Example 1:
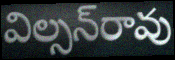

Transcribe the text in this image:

విల్సన్‌రావు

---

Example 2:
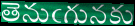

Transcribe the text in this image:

తెనుఁగునకు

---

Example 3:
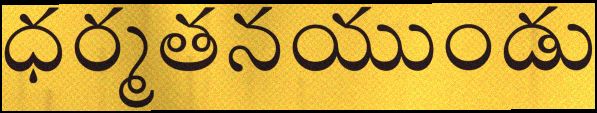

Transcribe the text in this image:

ధర్మతనయుండు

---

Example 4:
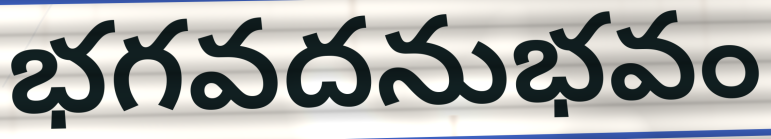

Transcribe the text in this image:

భగవదనుభవం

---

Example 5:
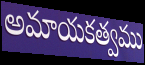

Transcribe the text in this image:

అమాయకత్వము